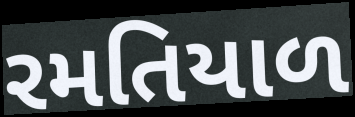
રમતિયાળ